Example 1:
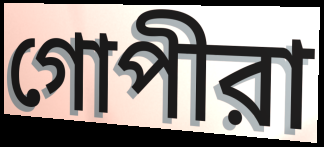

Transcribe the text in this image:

গোপীরা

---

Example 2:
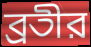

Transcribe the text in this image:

ব্রতীর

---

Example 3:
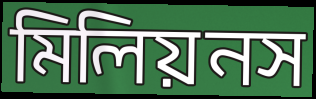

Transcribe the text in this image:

মিলিয়নস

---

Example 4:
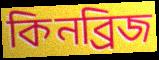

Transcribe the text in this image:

কিনব্রিজ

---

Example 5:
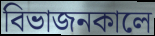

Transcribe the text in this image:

বিভাজনকালে